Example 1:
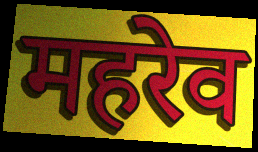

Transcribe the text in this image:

महरेव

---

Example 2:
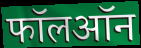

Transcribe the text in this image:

फॉलऑन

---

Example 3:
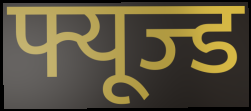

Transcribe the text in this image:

फ्यूज्ड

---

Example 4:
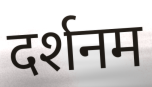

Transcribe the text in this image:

दर्शनम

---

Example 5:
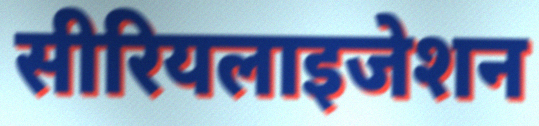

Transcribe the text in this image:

सीरियलाइजेशन